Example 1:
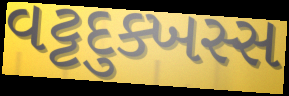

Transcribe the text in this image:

વટ્ટદુક્ખસ્સ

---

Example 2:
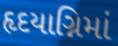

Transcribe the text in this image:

હૃદયાગ્નિમાં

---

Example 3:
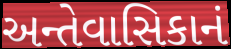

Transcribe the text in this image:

અન્તેવાસિકાનં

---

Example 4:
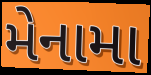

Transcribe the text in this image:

મેનામા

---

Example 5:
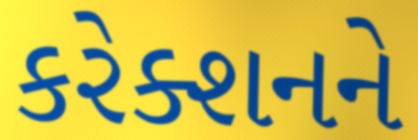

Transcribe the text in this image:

કરેક્શનને